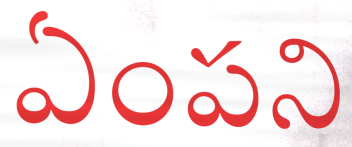
ఏంపని